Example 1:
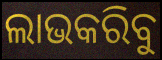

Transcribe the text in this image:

ଲାଭକରିବୁ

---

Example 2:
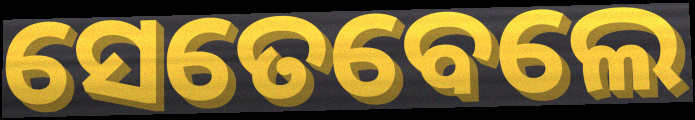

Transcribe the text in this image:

ସେତେବେଲେ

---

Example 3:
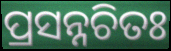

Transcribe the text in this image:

ପ୍ରସନ୍ନଚିତଃ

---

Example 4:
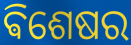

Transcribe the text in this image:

ଵିଶେଷର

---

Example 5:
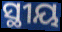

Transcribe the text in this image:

ସ୍ଥୀୟ